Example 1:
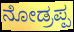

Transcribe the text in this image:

ನೋಡ್ರಪ್ಪ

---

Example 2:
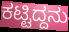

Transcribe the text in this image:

ಕಟ್ಟಿದ್ದನು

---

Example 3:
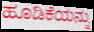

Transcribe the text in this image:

ಹೂಡಿಕೆಯನ್ನು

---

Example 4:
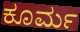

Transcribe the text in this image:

ಕೂರ್ಮ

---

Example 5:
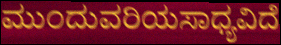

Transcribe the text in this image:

ಮುಂದುವರಿಯಸಾಧ್ಯವಿದೆ